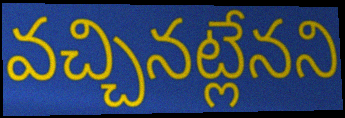
వచ్చినట్లేనని